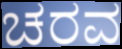
ಚರವ